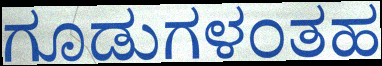
ಗೂಡುಗಳಂತಹ